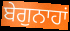
ਬੇਗੁਨਾਹਾਂ